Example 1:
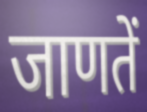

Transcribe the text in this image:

जाणतें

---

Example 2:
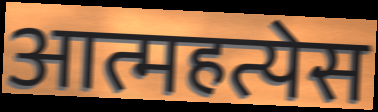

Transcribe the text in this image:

आत्महत्येस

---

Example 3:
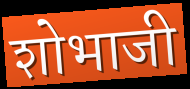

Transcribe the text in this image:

शोभाजी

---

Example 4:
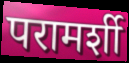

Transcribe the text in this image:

परामर्शी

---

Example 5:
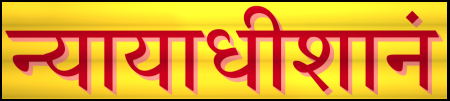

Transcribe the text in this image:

न्यायाधीशानं